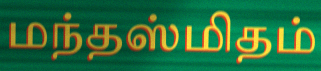
மந்தஸ்மிதம்